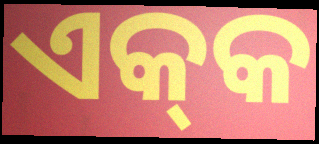
ଏକ୍‍କ